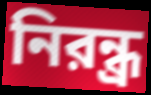
নিরন্ধ্র